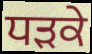
ਧੜਕੇ